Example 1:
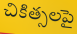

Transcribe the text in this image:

చికిత్సలపై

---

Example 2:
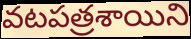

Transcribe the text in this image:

వటపత్రశాయిని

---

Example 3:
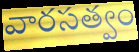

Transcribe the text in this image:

వారసత్వం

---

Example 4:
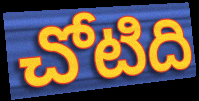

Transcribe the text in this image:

చోటిది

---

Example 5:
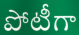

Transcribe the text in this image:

పోటీగా